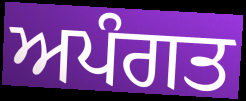
ਅਪੰਗਤ